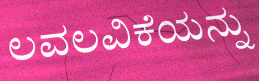
ಲವಲವಿಕೆಯನ್ನು